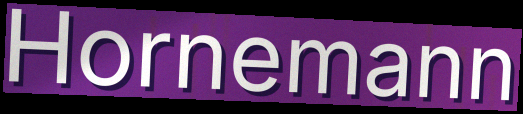
Hornemann